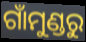
ଗାଁମୁଣ୍ଡରୁ